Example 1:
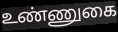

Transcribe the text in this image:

உண்ணுகை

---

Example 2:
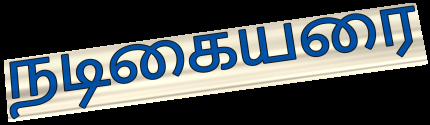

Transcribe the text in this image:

நடிகையரை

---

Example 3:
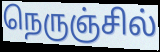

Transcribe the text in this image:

நெருஞ்சில்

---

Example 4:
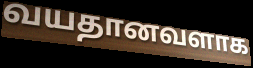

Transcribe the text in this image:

வயதானவளாக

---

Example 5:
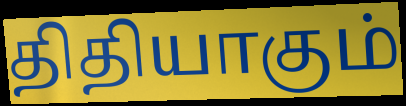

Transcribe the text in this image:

திதியாகும்